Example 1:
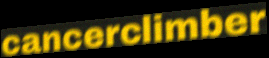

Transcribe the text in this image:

cancerclimber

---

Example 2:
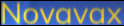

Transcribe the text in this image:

Novavax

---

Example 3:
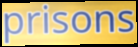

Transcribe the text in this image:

prisons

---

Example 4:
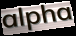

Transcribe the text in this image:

alpha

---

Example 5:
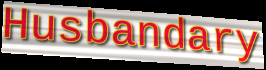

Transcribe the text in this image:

Husbandary